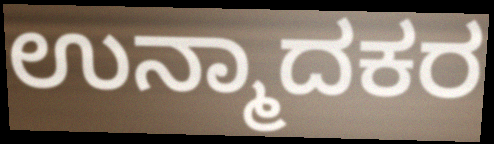
ಉನ್ಮಾದಕರ